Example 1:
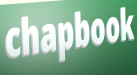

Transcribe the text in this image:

chapbook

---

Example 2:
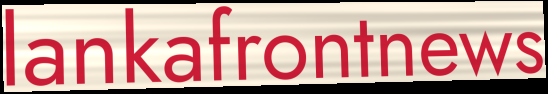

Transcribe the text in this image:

lankafrontnews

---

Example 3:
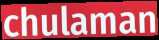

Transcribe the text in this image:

chulaman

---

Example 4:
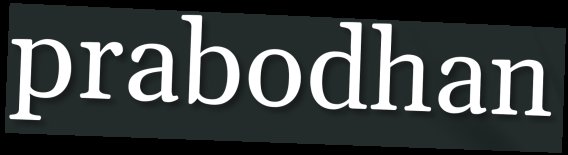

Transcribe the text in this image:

prabodhan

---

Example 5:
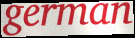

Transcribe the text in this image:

german